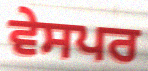
ਵੇਸਪਰ